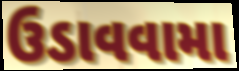
ઉડાવવામા